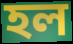
হল